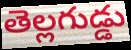
తెల్లగుడ్డు